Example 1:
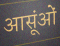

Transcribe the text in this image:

आसूंओं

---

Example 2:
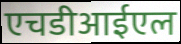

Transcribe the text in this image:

एचडीआईएल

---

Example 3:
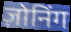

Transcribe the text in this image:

ज़ोनिंग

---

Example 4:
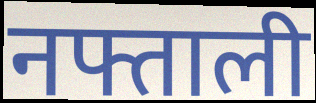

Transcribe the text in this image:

नफ्ताली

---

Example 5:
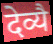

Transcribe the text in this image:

देव्यै